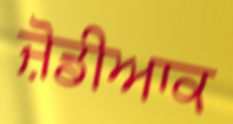
ਜ਼ੋਡੀਆਕ